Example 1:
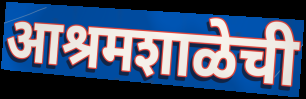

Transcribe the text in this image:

आश्रमशाळेची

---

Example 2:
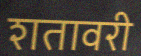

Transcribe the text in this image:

शतावरी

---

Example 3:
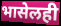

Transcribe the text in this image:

भासेलही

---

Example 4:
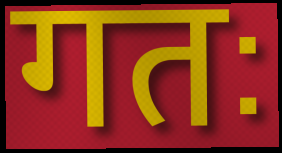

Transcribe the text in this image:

गतः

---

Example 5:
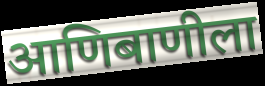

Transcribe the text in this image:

आणिबाणीला